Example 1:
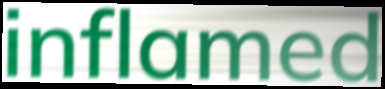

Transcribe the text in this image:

inflamed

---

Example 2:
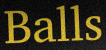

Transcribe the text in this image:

Balls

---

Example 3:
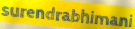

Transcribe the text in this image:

surendrabhimani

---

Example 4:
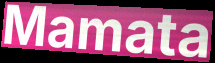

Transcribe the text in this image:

Mamata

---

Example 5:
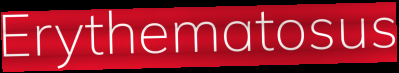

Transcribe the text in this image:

Erythematosus